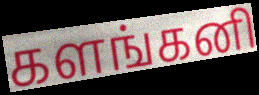
களங்கனி